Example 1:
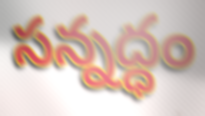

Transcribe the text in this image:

సన్నద్ధం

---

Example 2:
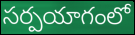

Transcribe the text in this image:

సర్పయాగంలో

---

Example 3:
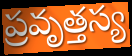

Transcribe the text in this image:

ప్రవృత్తస్య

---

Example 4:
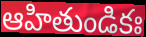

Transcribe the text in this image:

ఆహితుండికః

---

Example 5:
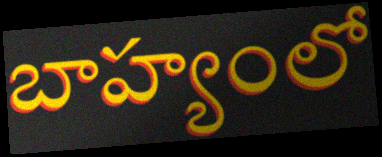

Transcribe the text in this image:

బాహ్యంలో